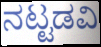
ನಟ್ಟಡವಿ